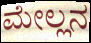
ಮೇಲ್ಲನ